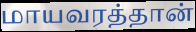
மாயவரத்தான்